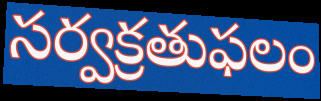
సర్వక్రతుఫలం